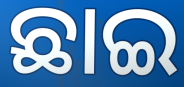
ଛାଇ